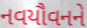
નવયૌવનને